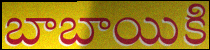
బాబాయికి